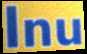
Inu